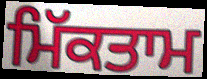
ਮਿੱਕਤਾਮ